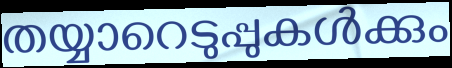
തയ്യാറെടുപ്പുകൾക്കും